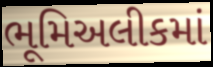
ભૂમિઅલીકમાં